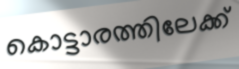
കൊട്ടാരത്തിലേക്ക്